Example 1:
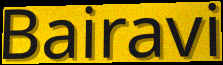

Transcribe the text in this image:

Bairavi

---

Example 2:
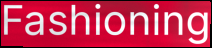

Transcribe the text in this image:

Fashioning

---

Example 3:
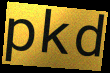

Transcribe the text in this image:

pkd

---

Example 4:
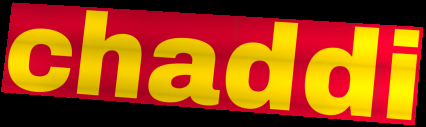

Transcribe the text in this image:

chaddi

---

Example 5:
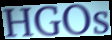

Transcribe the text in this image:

HGOs